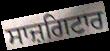
ਸਾਜ਼ਗਿਟਾਰ